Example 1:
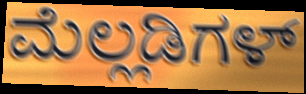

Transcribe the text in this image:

ಮೆಲ್ಲಡಿಗಳ್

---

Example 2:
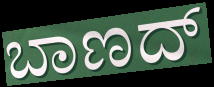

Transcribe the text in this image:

ಬಾಣದ್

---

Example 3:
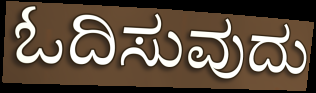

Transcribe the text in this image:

ಓದಿಸುವುದು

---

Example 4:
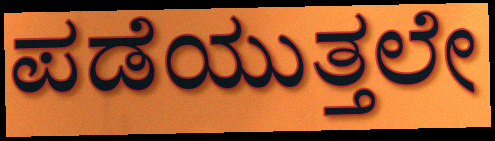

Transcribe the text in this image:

ಪಡೆಯುತ್ತಲೇ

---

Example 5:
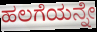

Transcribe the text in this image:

ಹಲಗೆಯನ್ನೇ